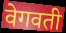
वेगवती